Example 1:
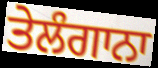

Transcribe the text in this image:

ਤੇਲੰਗਾਨਾ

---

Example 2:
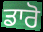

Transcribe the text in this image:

ਡਾਰੋ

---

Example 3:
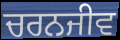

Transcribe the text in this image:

ਚਰਨਜੀਵ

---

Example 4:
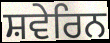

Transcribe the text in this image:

ਸ਼ਵੇਰਿਨ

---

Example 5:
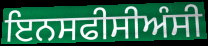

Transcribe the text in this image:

ਇਨਸਫੀਸੀਅੰਸੀ